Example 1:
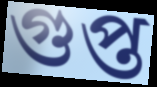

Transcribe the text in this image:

গুপ্ত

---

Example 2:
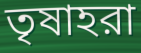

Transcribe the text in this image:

তৃষাহরা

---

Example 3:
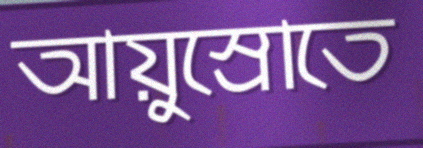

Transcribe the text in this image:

আয়ুস্রোতে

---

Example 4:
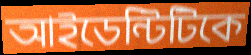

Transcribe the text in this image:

আইডেন্টিটিকে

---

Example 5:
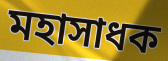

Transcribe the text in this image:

মহাসাধক